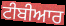
ਟੀਬੀਆਰ